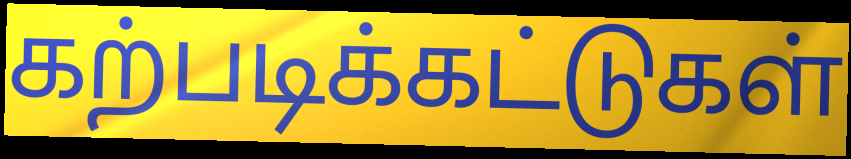
கற்படிக்கட்டுகள்